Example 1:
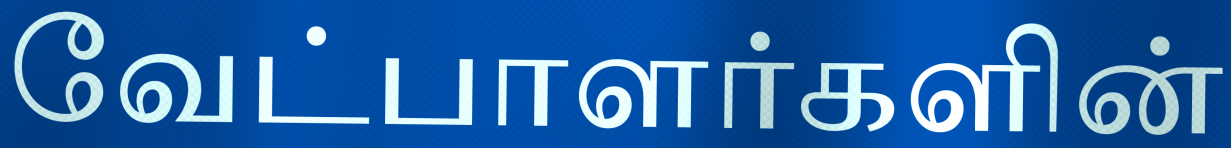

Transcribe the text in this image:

வேட்பாளர்களின்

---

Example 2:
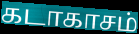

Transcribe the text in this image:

கடாகாசம்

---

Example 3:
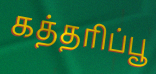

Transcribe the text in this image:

கத்தரிப்பூ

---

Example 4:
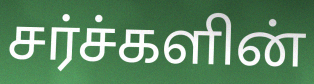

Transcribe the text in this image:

சர்ச்களின்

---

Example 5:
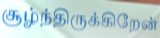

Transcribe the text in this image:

சூழ்ந்திருக்கிறேன்